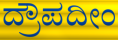
ದ್ರೌಪದೀಂ